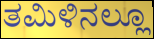
ತಮಿಳಿನಲ್ಲೂ